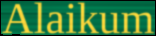
Alaikum